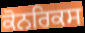
ਕੋਨਰਿਕਸ